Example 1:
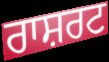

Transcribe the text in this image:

ਰਾਸ਼ਰਟ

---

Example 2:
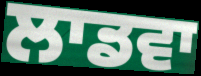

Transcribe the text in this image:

ਲਾਡਵਾ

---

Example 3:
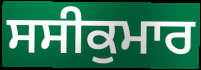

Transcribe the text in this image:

ਸਸੀਕੁਮਾਰ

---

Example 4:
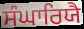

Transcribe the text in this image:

ਸੰਘਾਰਿਯੈ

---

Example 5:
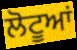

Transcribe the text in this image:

ਲੋਟੂਆਂ